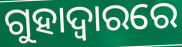
ଗୁହାଦ୍ଵାରରେ